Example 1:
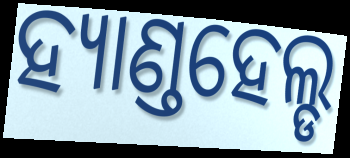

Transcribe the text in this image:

ହ୍ୟାଣ୍ଡହେଲ୍ଡ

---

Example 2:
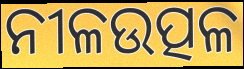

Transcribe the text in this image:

ନୀଳଉତ୍ପଳ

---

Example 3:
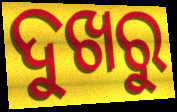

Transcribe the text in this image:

ଦୁଖରୁ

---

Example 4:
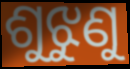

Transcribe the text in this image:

ଶୁଝୁଣୁ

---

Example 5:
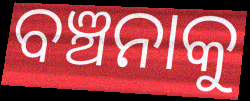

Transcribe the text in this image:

ବଞ୍ଚନାକୁ